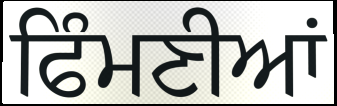
ਫਿੰਮਣੀਆਂ